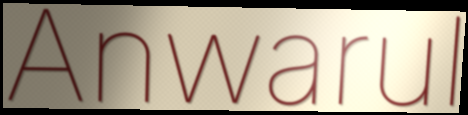
Anwarul